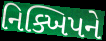
નિક્ખિપને